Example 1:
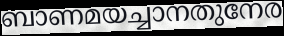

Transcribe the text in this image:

ബാണമയച്ചാനതുനേര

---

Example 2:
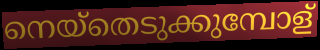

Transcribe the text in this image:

നെയ്തെടുക്കുമ്പോള്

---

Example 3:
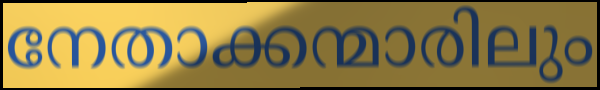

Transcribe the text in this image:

നേതാക്കന്മാരിലും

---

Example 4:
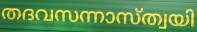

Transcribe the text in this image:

തദവസന്നാസ്ത്വയി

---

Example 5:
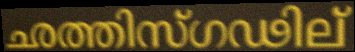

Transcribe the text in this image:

ഛത്തിസ്ഗഢില്